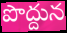
పొద్దున